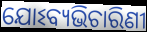
ଯୋଽବ୍ୟଭିଚାରିଣୀ